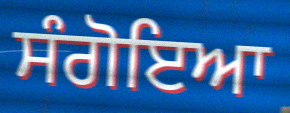
ਸੰਗੋਇਆ